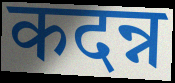
कदन्न